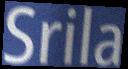
Srila